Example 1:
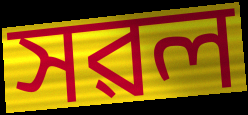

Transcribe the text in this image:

সৱল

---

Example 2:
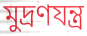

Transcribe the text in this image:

মুদ্ৰণযন্ত্ৰ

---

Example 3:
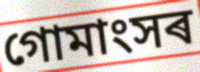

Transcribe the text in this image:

গোমাংসৰ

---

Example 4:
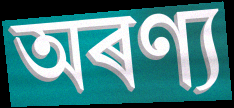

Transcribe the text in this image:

অৰণ্য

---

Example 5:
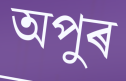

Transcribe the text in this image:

অপুৰ